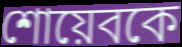
শোয়েবকে